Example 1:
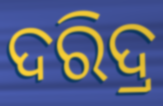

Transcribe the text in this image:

ଦରିଦ୍ର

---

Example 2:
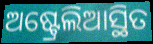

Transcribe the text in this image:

ଅଷ୍ଟ୍ରେଲିଆସ୍ଥିତ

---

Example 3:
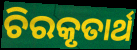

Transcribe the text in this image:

ଚିରକୃତାର୍ଥ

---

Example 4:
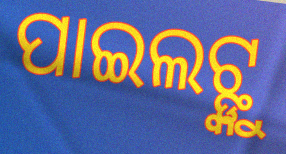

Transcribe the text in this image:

ପାଇଲଟ୍ଙ୍କୁ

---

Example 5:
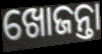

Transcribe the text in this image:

ଖୋଜନ୍ତା